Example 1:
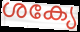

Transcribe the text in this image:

ശക്യേ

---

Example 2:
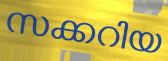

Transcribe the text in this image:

സക്കറിയ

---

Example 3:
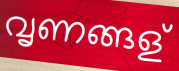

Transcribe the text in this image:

വൃണങ്ങള്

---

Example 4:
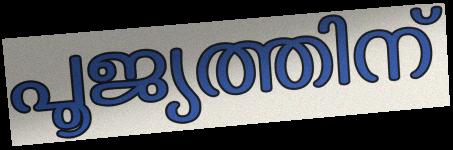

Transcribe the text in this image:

പൂജ്യത്തിന്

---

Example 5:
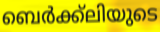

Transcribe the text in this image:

ബെർക്ക്ലിയുടെ